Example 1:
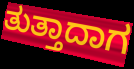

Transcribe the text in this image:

ತುತ್ತಾದಾಗ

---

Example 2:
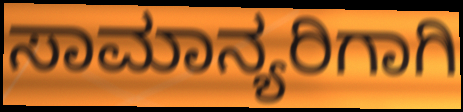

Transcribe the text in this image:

ಸಾಮಾನ್ಯರಿಗಾಗಿ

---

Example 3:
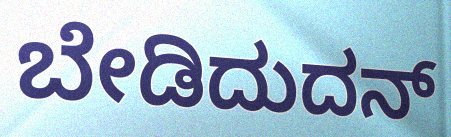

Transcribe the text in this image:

ಬೇಡಿದುದನ್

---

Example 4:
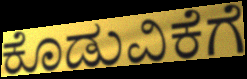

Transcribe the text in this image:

ಕೊಡುವಿಕೆಗೆ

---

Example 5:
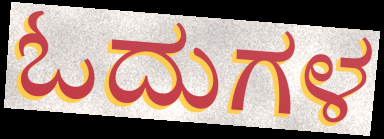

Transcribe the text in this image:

ಓದುಗಳ